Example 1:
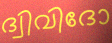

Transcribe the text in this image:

ദ്വിവിദോ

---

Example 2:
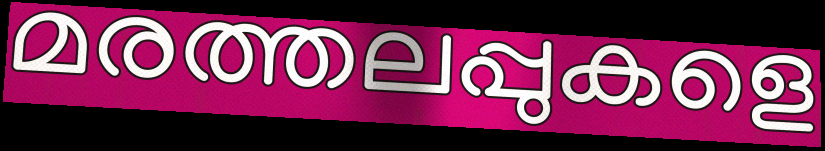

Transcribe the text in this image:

മരത്തലപ്പുകളെ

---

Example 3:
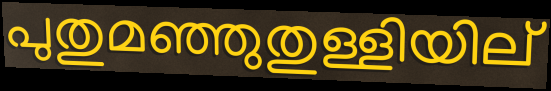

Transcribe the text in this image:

പുതുമഞ്ഞുതുള്ളിയില്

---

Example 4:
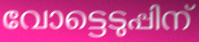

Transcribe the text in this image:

വോട്ടെടുപ്പിന്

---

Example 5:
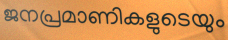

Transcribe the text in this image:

ജനപ്രമാണികളുടെയും